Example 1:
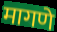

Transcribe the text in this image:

मागणे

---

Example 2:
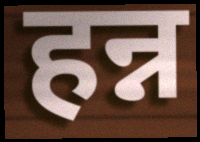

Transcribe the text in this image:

हन्न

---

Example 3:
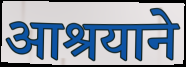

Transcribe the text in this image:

आश्रयाने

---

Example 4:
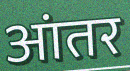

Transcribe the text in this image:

आंतर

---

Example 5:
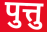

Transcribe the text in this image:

पुत्तु